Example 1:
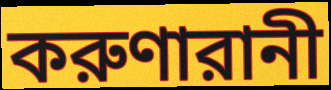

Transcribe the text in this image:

করুণারানী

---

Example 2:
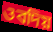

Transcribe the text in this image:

ওবদিয়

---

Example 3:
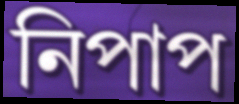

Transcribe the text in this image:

নিপাপ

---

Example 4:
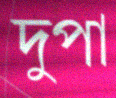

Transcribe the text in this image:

দুপা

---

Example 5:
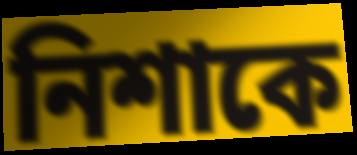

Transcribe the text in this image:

নিশাকে